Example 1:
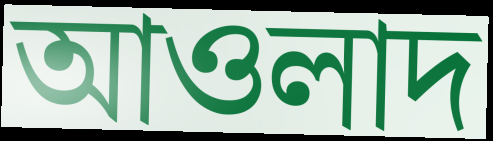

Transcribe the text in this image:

আওলাদ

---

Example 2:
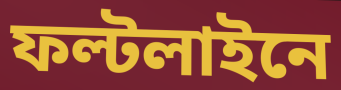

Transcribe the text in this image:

ফল্টলাইনে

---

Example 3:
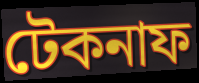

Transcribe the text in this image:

টেকনাফ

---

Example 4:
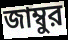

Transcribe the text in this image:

জাম্বুর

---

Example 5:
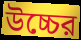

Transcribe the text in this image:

উচ্চের